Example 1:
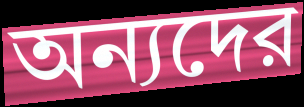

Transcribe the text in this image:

অন্যদের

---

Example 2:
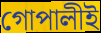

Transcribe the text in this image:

গোপালীই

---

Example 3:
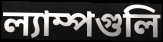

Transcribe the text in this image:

ল্যাম্পগুলি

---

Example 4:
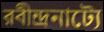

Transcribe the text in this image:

রবীন্দ্রনাট্যে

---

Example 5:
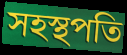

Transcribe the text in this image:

সহস্থপতি